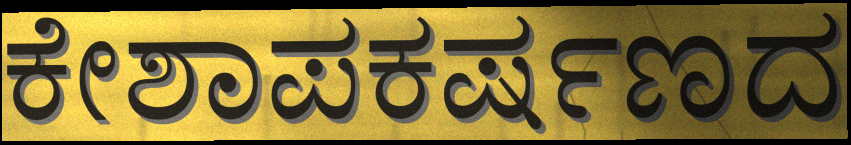
ಕೇಶಾಪಕರ್ಷಣದ